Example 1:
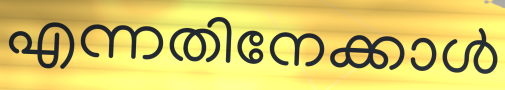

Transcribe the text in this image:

എന്നതിനേക്കാൾ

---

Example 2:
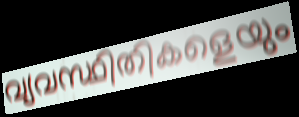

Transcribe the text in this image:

വ്യവസ്ഥിതികളെയും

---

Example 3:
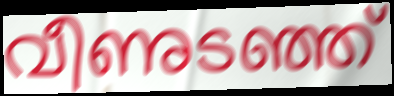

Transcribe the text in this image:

വീണുടഞ്ഞ്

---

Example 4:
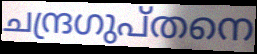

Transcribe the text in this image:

ചന്ദ്രഗുപ്തനെ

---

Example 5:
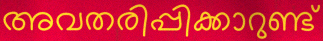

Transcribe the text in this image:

അവതരിപ്പിക്കാറുണ്ട്